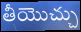
తీయొచ్చు